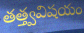
తత్త్వవిషయం